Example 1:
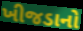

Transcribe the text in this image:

ખીજડાનો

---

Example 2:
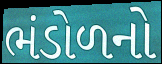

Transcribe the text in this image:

ભંડોળનો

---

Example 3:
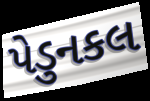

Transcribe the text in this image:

પેડુનકલ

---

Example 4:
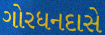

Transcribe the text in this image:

ગોરધનદાસે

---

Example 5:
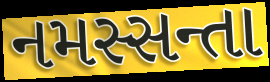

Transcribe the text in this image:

નમસ્સન્તા